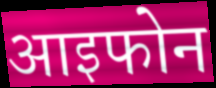
आइफोन